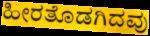
ಹೀರತೊಡಗಿದವು